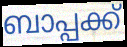
ബാപ്പക്ക്